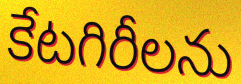
కేటగిరీలను